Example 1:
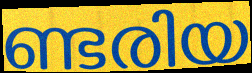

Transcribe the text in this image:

ണ്ടരിയ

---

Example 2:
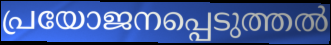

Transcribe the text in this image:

പ്രയോജനപ്പെടുത്തൽ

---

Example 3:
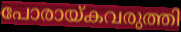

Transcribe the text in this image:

പോരായ്കവരുത്തി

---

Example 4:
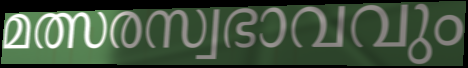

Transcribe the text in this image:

മത്സരസ്വഭാവവും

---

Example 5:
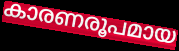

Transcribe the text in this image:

കാരണരൂപമായ